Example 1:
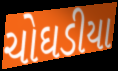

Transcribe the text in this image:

ચોઘડીયા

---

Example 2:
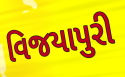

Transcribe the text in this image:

વિજયાપુરી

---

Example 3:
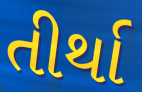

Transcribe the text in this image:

તીર્થા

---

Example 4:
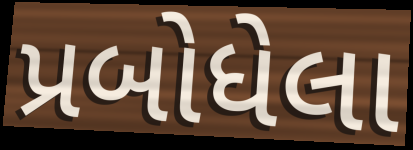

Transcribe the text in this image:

પ્રબોધેલા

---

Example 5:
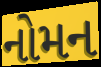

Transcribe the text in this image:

નોમન